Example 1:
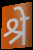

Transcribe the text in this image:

श्रे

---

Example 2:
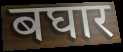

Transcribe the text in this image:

बघार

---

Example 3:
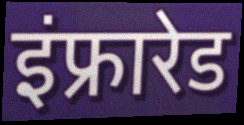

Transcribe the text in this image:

इंफ्रारेड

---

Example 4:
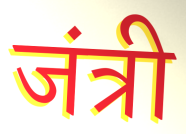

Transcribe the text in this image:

जंत्री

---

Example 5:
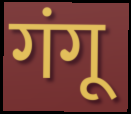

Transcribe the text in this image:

गंगू